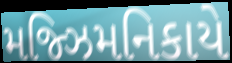
મજ્ઝિમનિકાયે